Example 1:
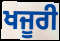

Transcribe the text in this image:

ਖਜੂਰੀ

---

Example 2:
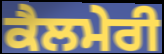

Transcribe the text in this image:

ਕੈਲਮੇਰੀ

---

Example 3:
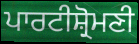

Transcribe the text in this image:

ਪਾਰਟੀਸ਼੍ਰੋਮਣੀ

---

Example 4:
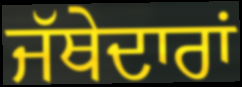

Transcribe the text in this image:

ਜੱਥੇਦਾਰਾਂ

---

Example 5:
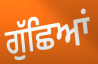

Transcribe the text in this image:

ਗੁੱਛਿਆਂ